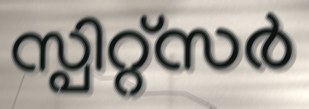
സ്പിറ്റ്സർ